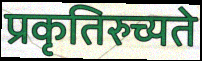
प्रकृतिरुच्यते